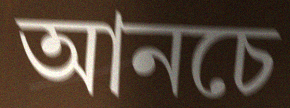
আনচে